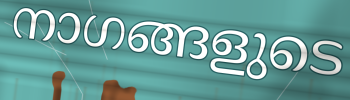
നാഗങ്ങളുടെ